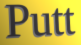
Putt